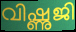
വിഷ്ണുജി